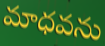
మాధవను